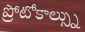
ప్రోటోకాల్స్ను